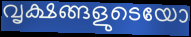
വൃക്ഷങ്ങളുടെയോ